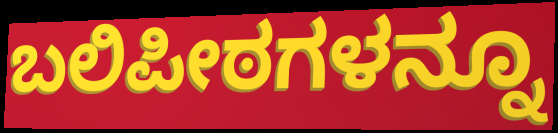
ಬಲಿಪೀಠಗಳನ್ನೂ